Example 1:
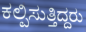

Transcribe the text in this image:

ಕಲ್ಪಿಸುತ್ತಿದ್ದರು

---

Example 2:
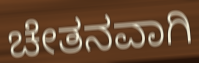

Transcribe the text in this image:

ಚೇತನವಾಗಿ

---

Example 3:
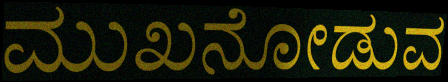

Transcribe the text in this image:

ಮುಖನೋಡುವ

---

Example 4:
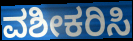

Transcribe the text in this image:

ವಶೀಕರಿಸಿ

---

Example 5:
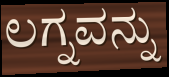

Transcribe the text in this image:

ಲಗ್ನವನ್ನು